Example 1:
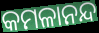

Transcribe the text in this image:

କମଳାନନ୍ଦ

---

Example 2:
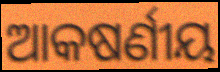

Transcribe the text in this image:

ଆକଷର୍ଣୀୟ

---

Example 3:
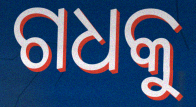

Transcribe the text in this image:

ଗଧକୁ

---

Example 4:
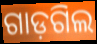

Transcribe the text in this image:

ଗାଡ଼ଗିଲ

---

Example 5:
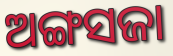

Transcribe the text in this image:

ଅଙ୍ଗସଜା